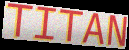
TITAN